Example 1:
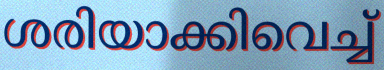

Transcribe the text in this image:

ശരിയാക്കിവെച്ച്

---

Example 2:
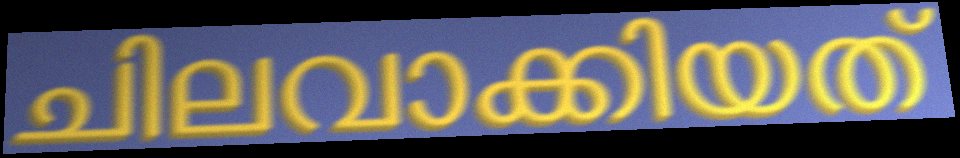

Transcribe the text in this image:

ചിലവാക്കിയത്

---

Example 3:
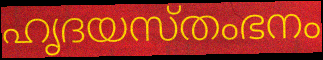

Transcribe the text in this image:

ഹൃദയസ്തംഭനം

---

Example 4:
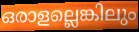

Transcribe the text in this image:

ഒരാളല്ലെങ്കിലും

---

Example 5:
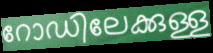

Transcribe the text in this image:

റോഡിലേക്കുള്ള